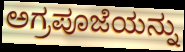
ಅಗ್ರಪೂಜೆಯನ್ನು